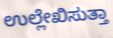
ಉಲ್ಲೇಖಿಸುತ್ತಾ